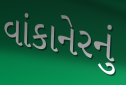
વાંકાનેરનું